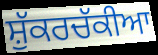
ਸ਼ੁੱਕਰਚੱਕੀਆ